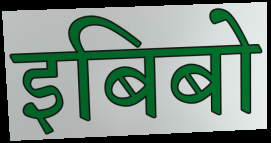
इबिबो